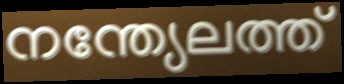
നന്ത്യേലത്ത്